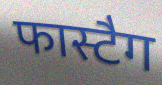
फास्‍टैग